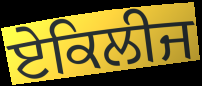
ਏਕਿਲੀਜ